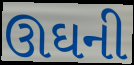
ઊઘની